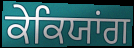
ਕੇਕਿਯਾਂਗ